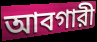
আবগারী